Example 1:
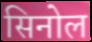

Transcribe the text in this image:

सिनोल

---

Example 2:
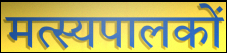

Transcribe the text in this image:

मत्स्यपालकों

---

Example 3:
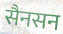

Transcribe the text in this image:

सैनसन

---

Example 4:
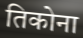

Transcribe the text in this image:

तिकोना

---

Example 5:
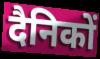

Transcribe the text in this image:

दैनिकों